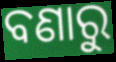
ବଣାରୁ